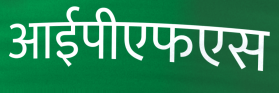
आईपीएफएस